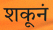
शकूनं